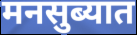
मनसुब्यात